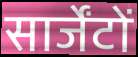
सार्जेंटों